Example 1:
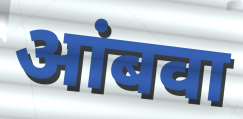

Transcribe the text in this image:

आंबवा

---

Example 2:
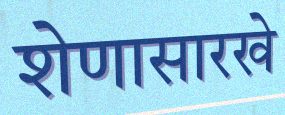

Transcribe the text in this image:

शेणासारखे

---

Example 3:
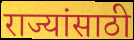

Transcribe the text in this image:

राज्यांसाठी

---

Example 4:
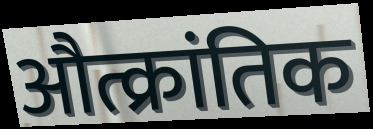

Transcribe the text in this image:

औत्क्रांतिक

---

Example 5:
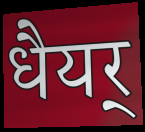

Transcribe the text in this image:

धैयर्